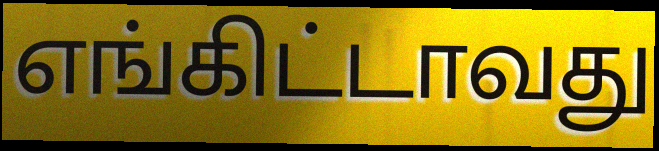
எங்கிட்டாவது